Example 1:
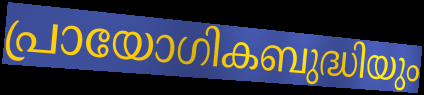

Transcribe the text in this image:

പ്രായോഗികബുദ്ധിയും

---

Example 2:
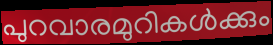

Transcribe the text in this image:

പുറവാരമുറികൾക്കും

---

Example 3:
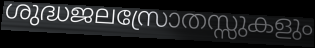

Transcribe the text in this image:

ശുദ്ധജലസ്രോതസ്സുകളും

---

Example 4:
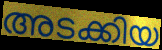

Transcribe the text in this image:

അടക്കിയ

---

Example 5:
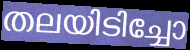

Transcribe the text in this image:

തലയിടിച്ചോ